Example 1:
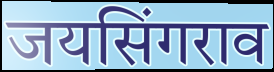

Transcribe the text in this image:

जयसिंगराव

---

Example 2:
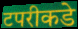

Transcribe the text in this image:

टपरीकडे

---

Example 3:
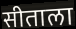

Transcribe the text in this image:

सीताला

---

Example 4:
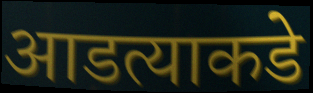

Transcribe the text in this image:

आडत्याकडे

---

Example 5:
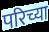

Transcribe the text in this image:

परिच्या